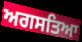
ਅਗਸਤਿਆ